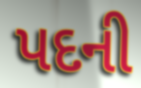
પદની